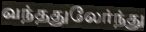
வந்ததுலேர்ந்து